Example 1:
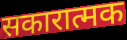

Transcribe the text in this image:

सकारात्मक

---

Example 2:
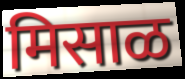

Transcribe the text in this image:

मिसाळ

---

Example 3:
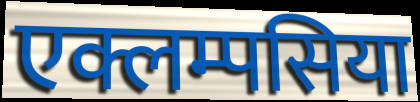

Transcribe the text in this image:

एक्लम्पसिया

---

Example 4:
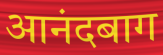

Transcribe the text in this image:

आनंदबाग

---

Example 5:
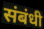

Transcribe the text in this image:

संबंधी